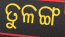
ତୁଳଙ୍ଗ